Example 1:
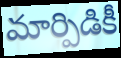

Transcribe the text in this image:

మార్పిడికీ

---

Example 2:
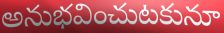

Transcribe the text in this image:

అనుభవించుటకునూ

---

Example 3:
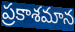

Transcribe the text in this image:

ప్రకాశమాన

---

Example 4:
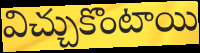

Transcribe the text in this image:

విచ్చుకొంటాయి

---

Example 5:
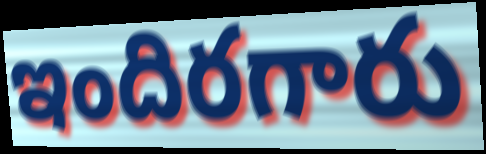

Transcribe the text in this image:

ఇందిరగారు